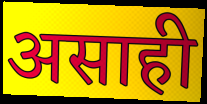
असाही